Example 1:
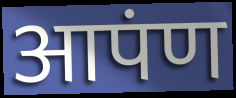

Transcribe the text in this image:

आपंण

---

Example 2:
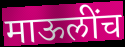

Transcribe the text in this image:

माऊलींच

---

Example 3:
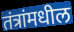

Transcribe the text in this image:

तंत्रांमधील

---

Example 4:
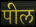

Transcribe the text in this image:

पील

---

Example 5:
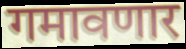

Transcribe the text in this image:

गमावणार